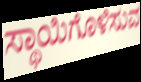
ಸ್ಥಾಯಿಗೊಳಿಸುವ